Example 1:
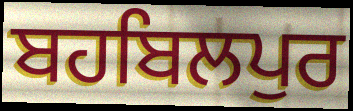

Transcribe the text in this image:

ਬਹਬਿਲਪੁਰ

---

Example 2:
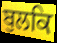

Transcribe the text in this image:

ਬੁਲਕਿ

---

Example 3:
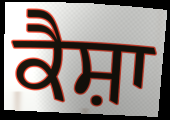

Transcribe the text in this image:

ਕੈਸ਼ਾ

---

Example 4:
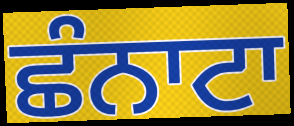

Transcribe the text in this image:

ਛੰਨਾਟਾ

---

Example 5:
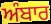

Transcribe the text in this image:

ਅੰਬਾਰ